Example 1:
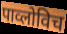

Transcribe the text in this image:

पाव्लोविच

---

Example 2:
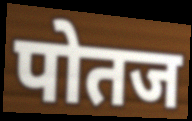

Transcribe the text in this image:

पोतज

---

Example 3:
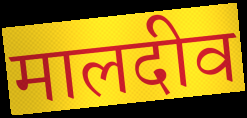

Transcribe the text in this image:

मालदीव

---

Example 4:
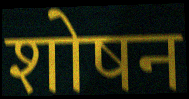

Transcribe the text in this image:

शोषन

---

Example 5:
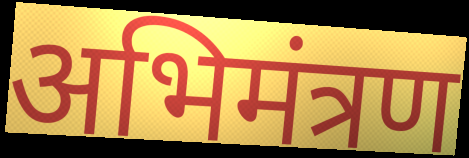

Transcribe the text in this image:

अभिमंत्रण